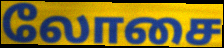
லோசை